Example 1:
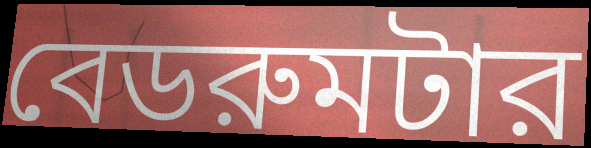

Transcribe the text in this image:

বেডরুমটার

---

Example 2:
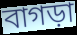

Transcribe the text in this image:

বাগড়া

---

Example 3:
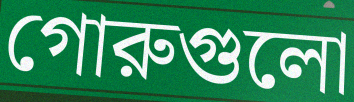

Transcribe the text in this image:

গোরুগুলো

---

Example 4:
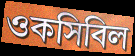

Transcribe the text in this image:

ওকসিবিল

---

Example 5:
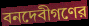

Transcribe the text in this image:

বনদেবীগণের